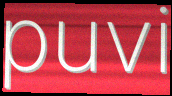
puvi